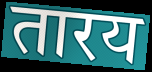
तारय